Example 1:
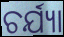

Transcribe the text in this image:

ଚର୍ଯ୍ଯା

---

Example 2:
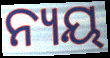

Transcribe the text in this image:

ନ୍ୟୟ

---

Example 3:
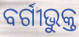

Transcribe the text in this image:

ବର୍ଗୀଭୁକ୍ତ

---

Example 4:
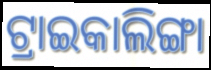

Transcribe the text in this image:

ଟ୍ରାଇକାଲିଙ୍ଗା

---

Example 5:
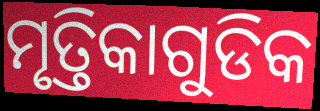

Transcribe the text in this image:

ମୃତ୍ତିକାଗୁଡିକ